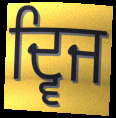
ਦ੍ਵਿਜ